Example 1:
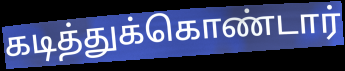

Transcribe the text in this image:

கடித்துக்கொண்டார்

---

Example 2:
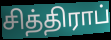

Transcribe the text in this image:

சித்திராப்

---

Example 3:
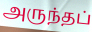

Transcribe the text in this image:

அருந்தப்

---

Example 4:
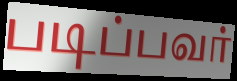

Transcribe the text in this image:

படிப்பவர்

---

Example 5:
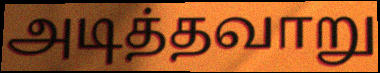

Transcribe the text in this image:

அடித்தவாறு